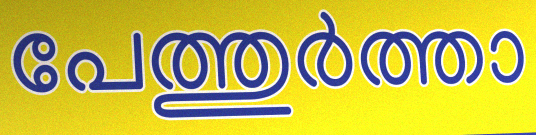
പേത്തുർത്താ